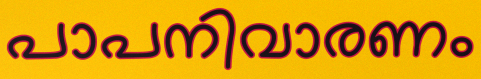
പാപനിവാരണം